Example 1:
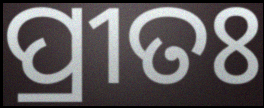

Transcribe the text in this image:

ପ୍ରୀତଃ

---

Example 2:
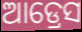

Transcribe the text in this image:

ଆଡ୍ରେସ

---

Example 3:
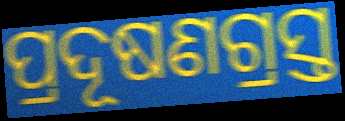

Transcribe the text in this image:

ପ୍ରଦୂଷଣଗ୍ରସ୍ତ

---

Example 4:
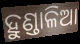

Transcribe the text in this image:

ହୁଣ୍ଡାଳିଆ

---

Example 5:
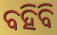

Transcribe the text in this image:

ବହିବି